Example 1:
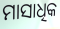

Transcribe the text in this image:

ମାସାଧିକ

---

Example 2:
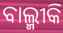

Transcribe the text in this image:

ବାଲ୍ମୀକି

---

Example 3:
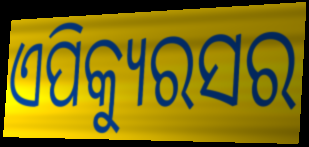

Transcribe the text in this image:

ଏପିକ୍ୟୁରସର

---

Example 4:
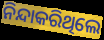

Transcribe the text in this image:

ନିନ୍ଦାକରିଥିଲେ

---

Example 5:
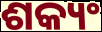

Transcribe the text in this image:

ଶକ୍ୟଂ